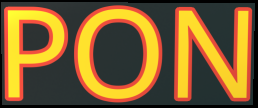
PON